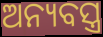
ଅନ୍ୟବସ୍ତ୍ର